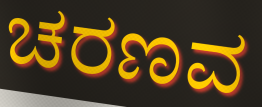
ಚರಣವ